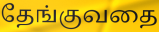
தேங்குவதை